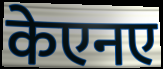
केएनए